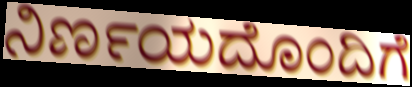
ನಿರ್ಣಯದೊಂದಿಗೆ